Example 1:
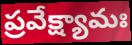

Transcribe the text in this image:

ప్రవేక్ష్యామః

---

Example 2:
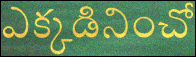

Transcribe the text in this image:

ఎక్కడినించో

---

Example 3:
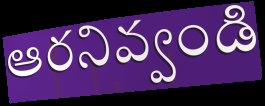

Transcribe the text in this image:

ఆరనివ్వండి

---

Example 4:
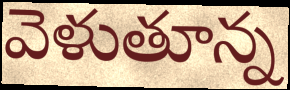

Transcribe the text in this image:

వెళుతూన్న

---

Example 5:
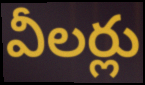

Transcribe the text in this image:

వీలర్లు